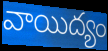
వాయిద్యం